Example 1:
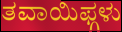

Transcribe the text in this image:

ತವಾಯಿಫ್ಗಳು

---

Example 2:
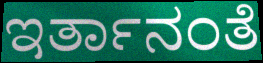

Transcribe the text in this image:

ಇರ್ತಾನಂತೆ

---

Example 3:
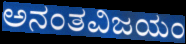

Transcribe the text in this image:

ಅನಂತವಿಜಯಂ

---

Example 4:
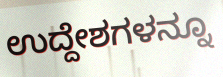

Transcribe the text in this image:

ಉದ್ದೇಶಗಳನ್ನೂ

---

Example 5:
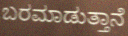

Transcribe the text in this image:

ಬರಮಾಡುತ್ತಾನೆ